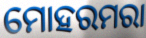
ମୋହରମରା